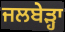
ਜਲਬੇੜ੍ਹਾ